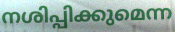
നശിപ്പിക്കുമെന്ന